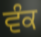
ਵੰਕ